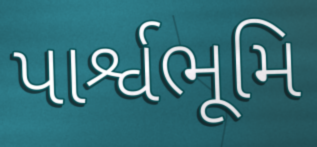
પાર્શ્વભૂમિ